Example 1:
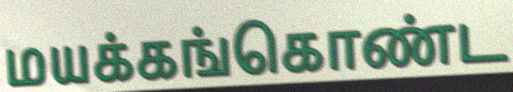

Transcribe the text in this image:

மயக்கங்கொண்ட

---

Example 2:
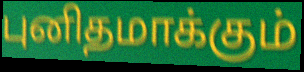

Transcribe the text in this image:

புனிதமாக்கும்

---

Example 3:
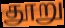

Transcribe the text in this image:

தூறு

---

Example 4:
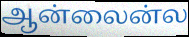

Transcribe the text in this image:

ஆன்லைன்ல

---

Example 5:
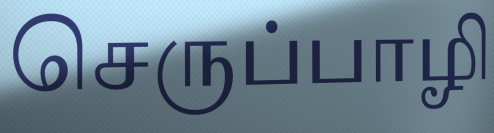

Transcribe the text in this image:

செருப்பாழி